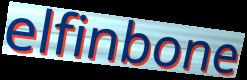
elfinbone